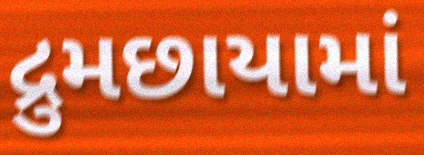
દ્રુમછાયામાં